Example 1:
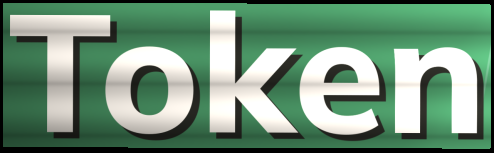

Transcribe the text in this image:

Token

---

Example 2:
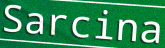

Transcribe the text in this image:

Sarcina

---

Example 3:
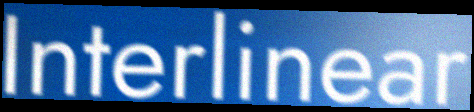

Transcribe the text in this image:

Interlinear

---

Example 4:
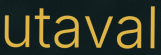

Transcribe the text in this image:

utaval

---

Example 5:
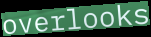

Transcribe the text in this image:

overlooks